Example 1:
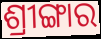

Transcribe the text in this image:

ଶ୍ରୀଙ୍ଗାର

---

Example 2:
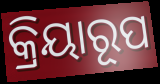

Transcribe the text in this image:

କ୍ରିୟାରୂପ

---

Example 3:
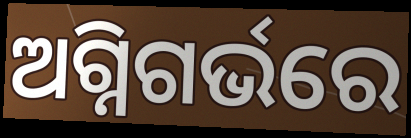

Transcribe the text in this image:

ଅଗ୍ନିଗର୍ଭରେ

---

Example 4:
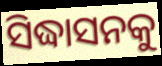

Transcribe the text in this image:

ସିଦ୍ଧାସନକୁ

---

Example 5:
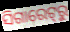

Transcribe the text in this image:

ସିଗାରେଟ୍‌ରୁ